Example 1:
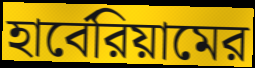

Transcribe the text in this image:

হার্বেরিয়ামের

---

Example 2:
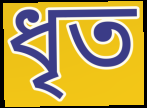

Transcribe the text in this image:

ধৃত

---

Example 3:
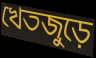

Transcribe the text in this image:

খেতজুড়ে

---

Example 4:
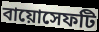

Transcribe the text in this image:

বায়োসেফটি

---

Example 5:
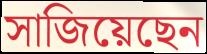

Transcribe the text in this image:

সাজিয়েছেন